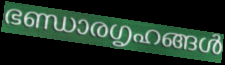
ഭണ്ഡാരഗൃഹങ്ങൾ